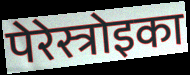
पेरेस्त्रोइका